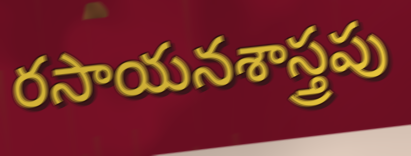
రసాయనశాస్త్రపు